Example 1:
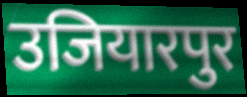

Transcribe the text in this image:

उजियारपुर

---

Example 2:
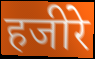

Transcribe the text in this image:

हजीरे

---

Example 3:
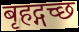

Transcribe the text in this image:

बृहद्गच्छ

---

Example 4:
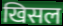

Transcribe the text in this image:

खिसल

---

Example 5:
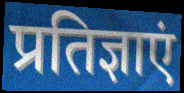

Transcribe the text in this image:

प्रतिज्ञाएं